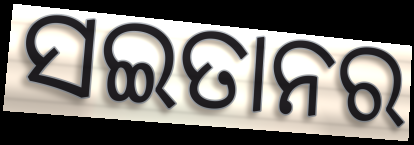
ସଇତାନର